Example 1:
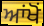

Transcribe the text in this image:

ਆਂਖੋਂ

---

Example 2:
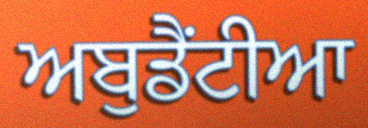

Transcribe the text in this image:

ਅਬੁਡੈਂਟੀਆ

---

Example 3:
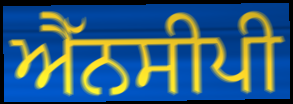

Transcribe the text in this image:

ਐੱਨਸੀਪੀ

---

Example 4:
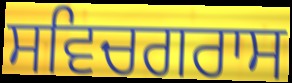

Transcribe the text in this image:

ਸਵਿਚਗਰਾਸ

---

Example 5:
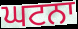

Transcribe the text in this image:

ਘਟਨਾ